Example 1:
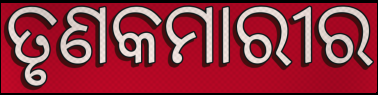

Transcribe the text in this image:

ତୃଣକମାରୀର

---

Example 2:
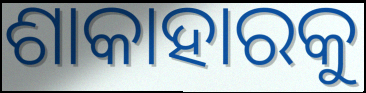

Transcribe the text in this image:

ଶାକାହାରକୁ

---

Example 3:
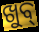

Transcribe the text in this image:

ଖୁବ୍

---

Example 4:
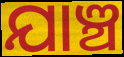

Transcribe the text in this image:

ଯାଞ୍ଚ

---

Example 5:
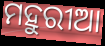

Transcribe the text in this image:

ମହୁରୀଆ